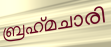
ബ്രഹ്‌മചാരി